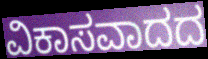
ವಿಕಾಸವಾದದ